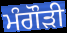
ਮੰਗੌੜੀ